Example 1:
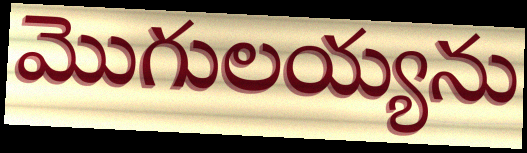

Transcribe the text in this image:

మొగులయ్యను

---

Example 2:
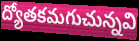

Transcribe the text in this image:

ద్యోతకమగుచున్నవి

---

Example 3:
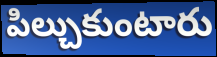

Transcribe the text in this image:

పిల్చుకుంటారు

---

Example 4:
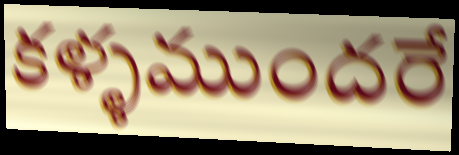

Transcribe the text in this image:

కళ్ళముందరే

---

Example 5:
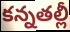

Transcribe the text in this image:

కన్నతల్లీ